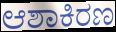
ಆಶಾಕಿರಣ